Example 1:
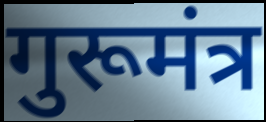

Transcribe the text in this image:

गुरूमंत्र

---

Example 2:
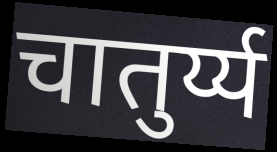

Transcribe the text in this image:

चातुर्य्य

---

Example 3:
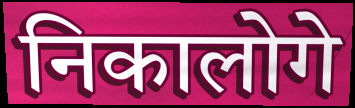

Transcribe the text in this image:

निकालोगे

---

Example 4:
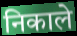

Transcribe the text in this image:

निकाले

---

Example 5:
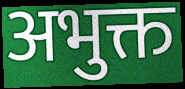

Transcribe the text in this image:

अभुक्त